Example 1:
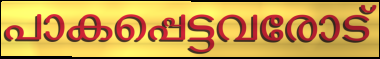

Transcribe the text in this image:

പാകപ്പെട്ടവരോട്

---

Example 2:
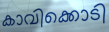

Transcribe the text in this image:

കാവിക്കൊടി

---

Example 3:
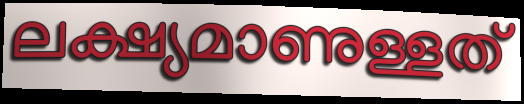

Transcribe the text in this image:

ലക്ഷ്യമാണുള്ളത്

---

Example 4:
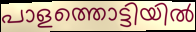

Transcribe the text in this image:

പാളത്തൊട്ടിയിൽ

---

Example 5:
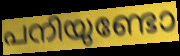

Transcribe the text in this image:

പനിയുണ്ടോ